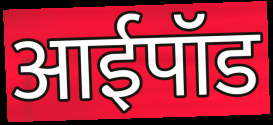
आईपॉड